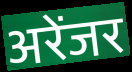
अरेंजर